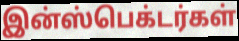
இன்ஸ்பெக்டர்கள்